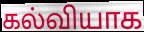
கல்வியாக